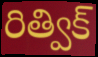
రిత్విక్